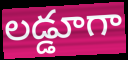
లడ్డూగా